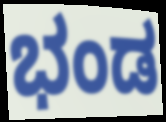
ಭಂಡ